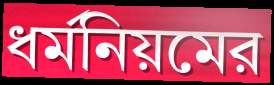
ধর্মনিয়মের